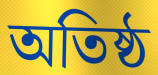
অতিষ্ঠ